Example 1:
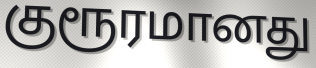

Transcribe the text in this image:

குரூரமானது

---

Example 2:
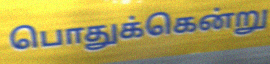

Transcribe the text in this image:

பொதுக்கென்று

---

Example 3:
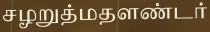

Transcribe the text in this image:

சழறுத்மதளண்டர்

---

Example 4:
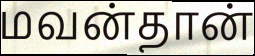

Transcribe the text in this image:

மவன்தான்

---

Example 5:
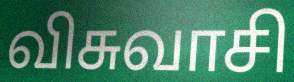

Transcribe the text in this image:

விசுவாசி